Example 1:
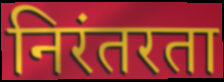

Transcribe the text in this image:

निरंतरता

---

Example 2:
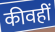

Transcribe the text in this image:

कीवहीं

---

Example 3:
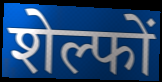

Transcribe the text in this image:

शेल्फों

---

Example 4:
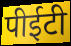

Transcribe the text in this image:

पीईटी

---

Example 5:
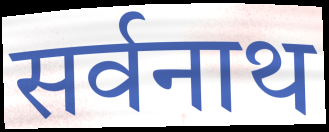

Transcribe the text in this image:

सर्वनाथ